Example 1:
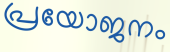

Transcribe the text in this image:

പ്രയോജനം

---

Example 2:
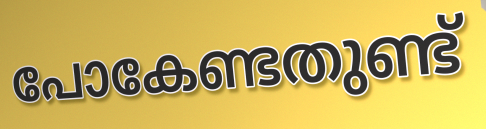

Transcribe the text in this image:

പോകേണ്ടതുണ്ട്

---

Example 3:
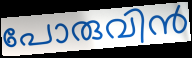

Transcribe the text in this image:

പോരുവിൻ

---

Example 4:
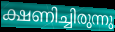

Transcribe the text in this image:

ക്ഷണിച്ചിരുന്നു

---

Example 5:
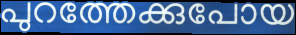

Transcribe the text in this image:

പുറത്തേക്കുപോയ